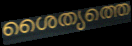
ശൈത്യത്തെ